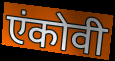
एंकोवी